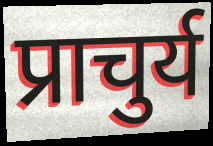
प्राचुर्य